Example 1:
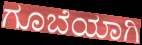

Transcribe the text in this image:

ಗೂಬೆಯಾಗಿ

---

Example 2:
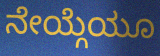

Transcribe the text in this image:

ನೇಯ್ಗೆಯೂ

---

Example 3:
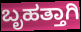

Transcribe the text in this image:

ಬೃಹತ್ತಾಗಿ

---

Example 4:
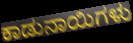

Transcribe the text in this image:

ಕಾಡುನಾಯಿಗಳು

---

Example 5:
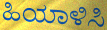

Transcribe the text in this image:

ಹಿಯಾಳಿಸಿ